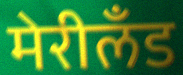
मेरीलँड